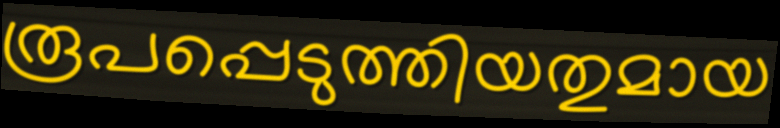
രൂപപ്പെടുത്തിയതുമായ